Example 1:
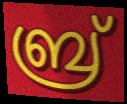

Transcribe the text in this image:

ബ്ര്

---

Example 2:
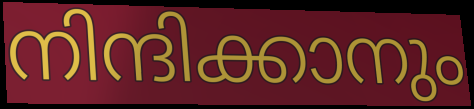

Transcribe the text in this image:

നിന്ദിക്കാനും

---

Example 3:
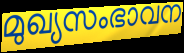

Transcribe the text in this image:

മുഖ്യസംഭാവന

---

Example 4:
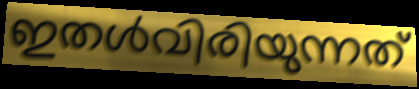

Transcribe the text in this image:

ഇതൾവിരിയുന്നത്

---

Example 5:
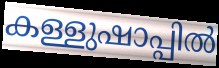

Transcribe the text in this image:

കള്ളുഷാപ്പിൽ